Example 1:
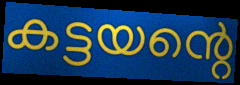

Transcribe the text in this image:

കട്ടയന്റെ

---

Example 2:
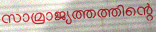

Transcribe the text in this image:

സാമ്രാജ്യത്തത്തിന്റെ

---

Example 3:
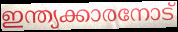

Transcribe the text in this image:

ഇന്ത്യക്കാരനോട്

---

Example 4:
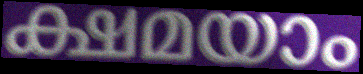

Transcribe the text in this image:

ക്ഷമയാം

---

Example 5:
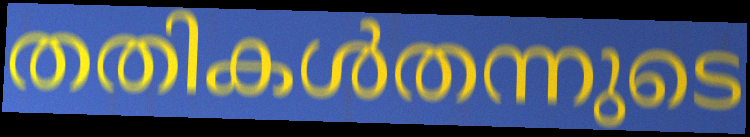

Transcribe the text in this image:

തതികൾതന്നുടെ